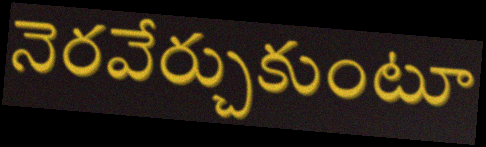
నెరవేర్చుకుంటూ